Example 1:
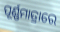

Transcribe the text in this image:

ପୂର୍ଣ୍ଣମାତ୍ରାରେ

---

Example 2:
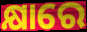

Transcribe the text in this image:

କ୍ଷାରେ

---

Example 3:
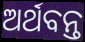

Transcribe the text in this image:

ଅର୍ଥବନ୍ତ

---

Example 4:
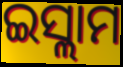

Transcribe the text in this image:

ଇସ୍ଲାମ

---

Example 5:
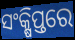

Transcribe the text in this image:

ସଂକ୍ଷିପ୍ତରେ